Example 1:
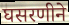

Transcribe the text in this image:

घसरणीने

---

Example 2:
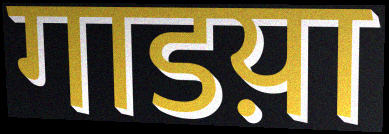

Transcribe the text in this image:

गाडय़ा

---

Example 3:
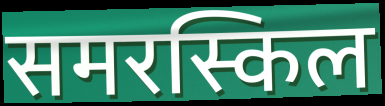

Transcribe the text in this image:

समरस्किल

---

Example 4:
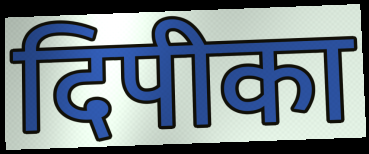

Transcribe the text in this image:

दिपीका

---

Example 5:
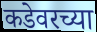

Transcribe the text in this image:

कडेवरच्या